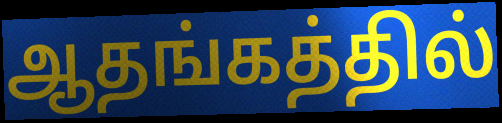
ஆதங்கத்தில்